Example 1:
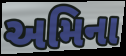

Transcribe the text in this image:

અમિના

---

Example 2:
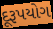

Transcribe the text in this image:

દૂરૂપયોગ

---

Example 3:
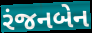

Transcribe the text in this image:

રંજનબેન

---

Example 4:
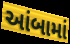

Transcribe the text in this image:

આંબામાં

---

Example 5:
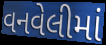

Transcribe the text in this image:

વનવેલીમાં